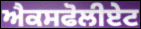
ਐਕਸਫੋਲੀਏਟ